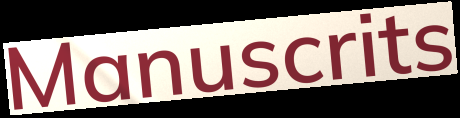
Manuscrits